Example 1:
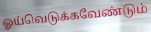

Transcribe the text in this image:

ஓய்வெடுக்கவேண்டும்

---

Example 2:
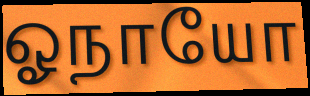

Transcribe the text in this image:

ஓநாயோ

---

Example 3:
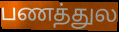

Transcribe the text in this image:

பணத்துல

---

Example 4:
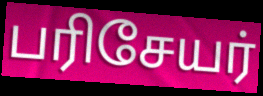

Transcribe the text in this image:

பரிசேயர்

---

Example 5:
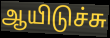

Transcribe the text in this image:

ஆயிடுச்சு